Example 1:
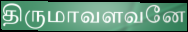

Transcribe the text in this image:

திருமாவளவனே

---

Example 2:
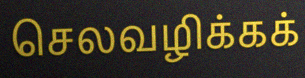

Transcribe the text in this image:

செலவழிக்கக்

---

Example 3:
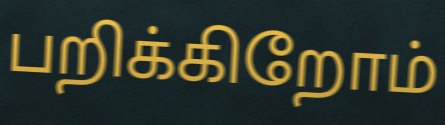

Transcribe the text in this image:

பறிக்கிறோம்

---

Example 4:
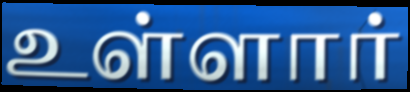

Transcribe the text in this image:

உள்ளார்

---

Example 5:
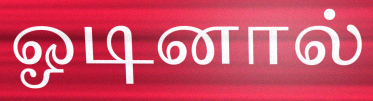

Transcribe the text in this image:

ஓடினால்